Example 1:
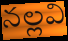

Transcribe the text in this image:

నల్లవి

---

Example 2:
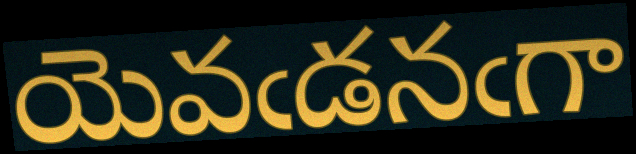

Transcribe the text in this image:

యెవఁడనఁగా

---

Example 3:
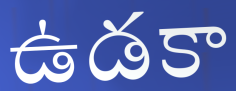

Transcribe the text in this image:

ఉడకా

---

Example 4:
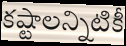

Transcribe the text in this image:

కష్టాలన్నిటికీ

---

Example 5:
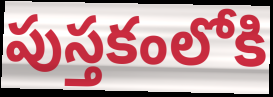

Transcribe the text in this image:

పుస్తకంలోకి